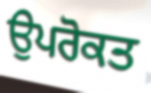
ਉਪਰੋਕਤ